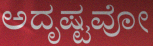
ಅದೃಷ್ಟವೋ